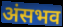
अंसभव